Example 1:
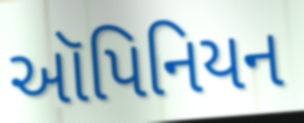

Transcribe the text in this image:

ઑપિનિયન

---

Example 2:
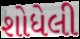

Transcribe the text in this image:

શોધેલી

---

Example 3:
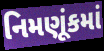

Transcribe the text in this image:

નિમણૂંકમાં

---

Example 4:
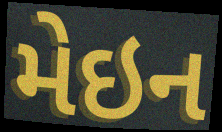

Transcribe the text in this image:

મેઇન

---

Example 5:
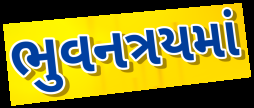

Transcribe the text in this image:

ભુવનત્રયમાં